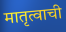
मातृत्वाची